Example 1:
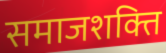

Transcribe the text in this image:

समाजशक्ति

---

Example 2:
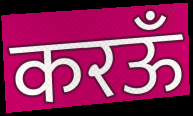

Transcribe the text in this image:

करऊँ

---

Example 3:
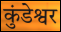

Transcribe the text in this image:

कुंडेश्वर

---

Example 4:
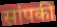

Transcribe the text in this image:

सांपकी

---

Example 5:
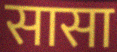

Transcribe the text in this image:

सासा